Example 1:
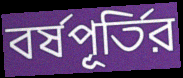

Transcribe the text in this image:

বর্ষপূর্তির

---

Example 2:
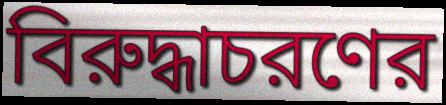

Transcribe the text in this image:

বিরুদ্ধাচরণের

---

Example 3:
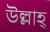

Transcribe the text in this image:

উল্লাহ্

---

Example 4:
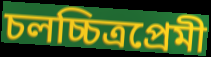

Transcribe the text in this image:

চলচ্চিত্রপ্রেমী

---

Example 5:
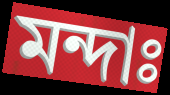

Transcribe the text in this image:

মন্দাঃ